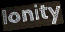
Ionity